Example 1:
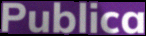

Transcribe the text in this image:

Publica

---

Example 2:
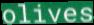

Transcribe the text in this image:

olives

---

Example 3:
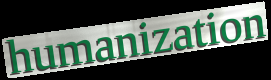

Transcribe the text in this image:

humanization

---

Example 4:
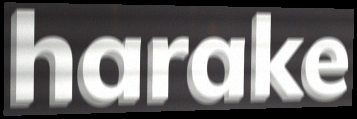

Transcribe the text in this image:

harake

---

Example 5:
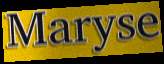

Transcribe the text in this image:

Maryse